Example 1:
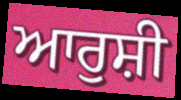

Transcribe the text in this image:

ਆਰੁਸ਼ੀ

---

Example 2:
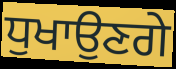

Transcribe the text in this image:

ਧੁਖਾਉਣਗੇ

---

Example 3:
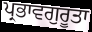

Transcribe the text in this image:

ਪ੍ਰਭਾਵਗੁਰੂਤਾ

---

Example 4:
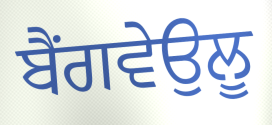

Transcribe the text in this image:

ਬੈਂਗਵੇਉਲੂ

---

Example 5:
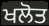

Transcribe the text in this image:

ਖਲੋਤ